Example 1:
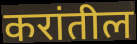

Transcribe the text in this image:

करांतील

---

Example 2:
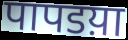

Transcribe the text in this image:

पापडय़ा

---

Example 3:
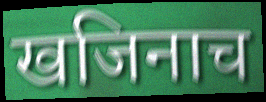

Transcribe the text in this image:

खजिनाच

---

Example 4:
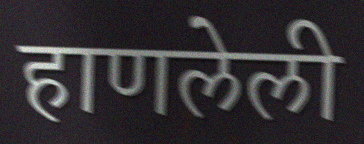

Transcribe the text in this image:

हाणलेली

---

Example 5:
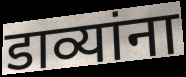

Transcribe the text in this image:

डाव्यांना